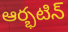
ఆర్భటిన్